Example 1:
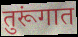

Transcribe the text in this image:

तुरूंगात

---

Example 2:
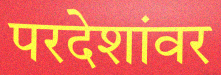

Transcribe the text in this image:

परदेशांवर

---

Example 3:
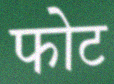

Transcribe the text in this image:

फोट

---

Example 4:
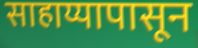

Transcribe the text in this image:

साहाय्यापासून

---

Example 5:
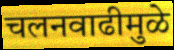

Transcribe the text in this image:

चलनवाढीमुळे